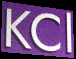
KCl